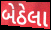
બેઠેલા